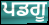
ਪਡਗੂ